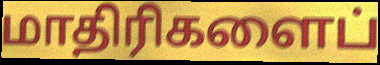
மாதிரிகளைப்